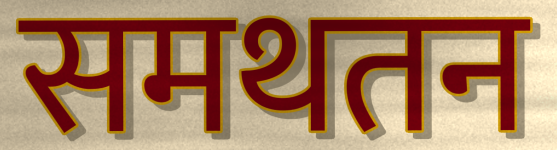
समथतन